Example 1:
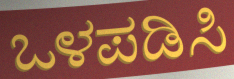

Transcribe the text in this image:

ಒಳಪಡಿಸಿ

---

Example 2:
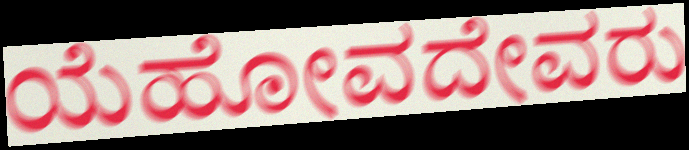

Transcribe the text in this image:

ಯೆಹೋವದೇವರು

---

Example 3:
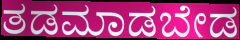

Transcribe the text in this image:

ತಡಮಾಡಬೇಡ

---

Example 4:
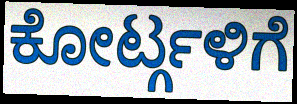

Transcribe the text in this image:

ಕೋರ್ಟ್ಗಳಿಗೆ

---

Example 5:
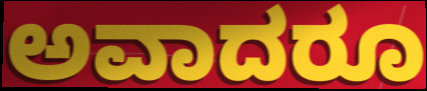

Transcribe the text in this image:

ಅವಾದರೂ